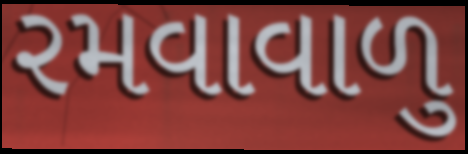
રમવાવાળુ